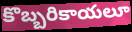
కొబ్బరికాయలూ